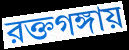
রক্তগঙ্গায়